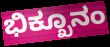
ಭಿಕ್ಖೂನಂ